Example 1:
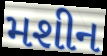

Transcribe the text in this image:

મશીન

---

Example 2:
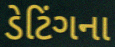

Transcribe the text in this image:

ડેટિંગના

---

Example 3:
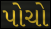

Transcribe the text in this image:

પોચો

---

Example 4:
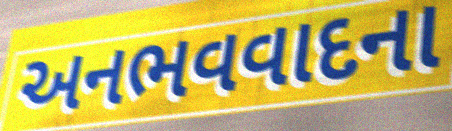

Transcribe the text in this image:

અનભવવાદના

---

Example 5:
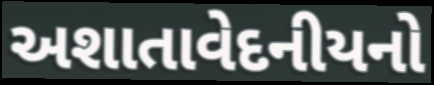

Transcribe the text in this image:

અશાતાવેદનીયનો